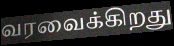
வரவைக்கிறது